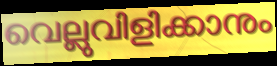
വെല്ലുവിളിക്കാനും